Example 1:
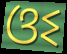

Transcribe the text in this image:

ଓଽ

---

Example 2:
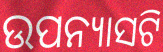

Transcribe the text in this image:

ଉପନ୍ୟାସଟି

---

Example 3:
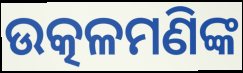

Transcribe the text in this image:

ଉତ୍କଳମଣିଙ୍କ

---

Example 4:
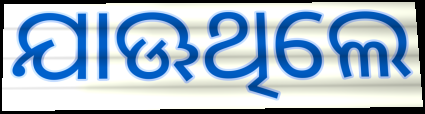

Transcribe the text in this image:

ଯାଊଥିଲେ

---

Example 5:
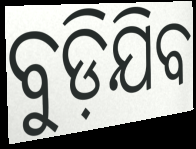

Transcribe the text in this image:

ବୁଡ଼ିଯିବ